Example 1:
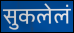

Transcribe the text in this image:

सुकलेलं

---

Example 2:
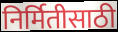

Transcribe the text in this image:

निर्मितीसाठी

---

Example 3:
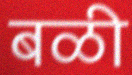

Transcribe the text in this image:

बळी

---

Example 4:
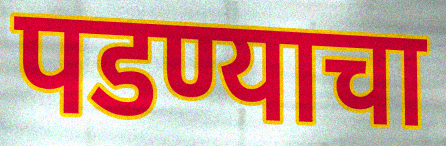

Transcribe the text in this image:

पडण्याचा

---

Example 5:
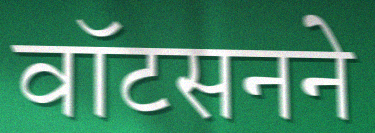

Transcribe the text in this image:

वॉटसनने